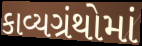
કાવ્યગ્રંથોમાં